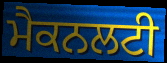
ਮੈਕਨਲਟੀ